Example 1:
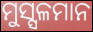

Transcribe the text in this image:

ମୁସ୍ସଳମାନ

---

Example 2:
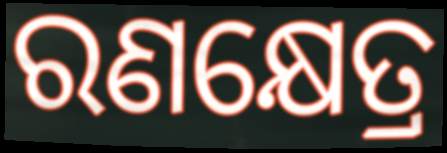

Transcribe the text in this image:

ରଣକ୍ଷେତ୍ର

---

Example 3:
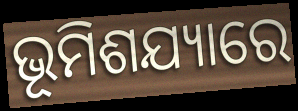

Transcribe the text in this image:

ଭୂମିଶଯ୍ୟାରେ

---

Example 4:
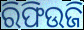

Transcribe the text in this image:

ରିଫିଉଜି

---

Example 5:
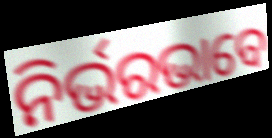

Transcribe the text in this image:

ନିର୍ଭରଭାବେ